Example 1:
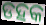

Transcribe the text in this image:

ଡହକ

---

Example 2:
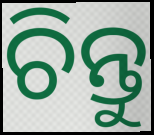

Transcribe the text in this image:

ଚିନ୍ତୁ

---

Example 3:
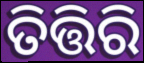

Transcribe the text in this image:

ତିତ୍ତିରି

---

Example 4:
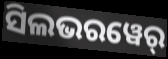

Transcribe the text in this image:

ସିଲଭରୱେର୍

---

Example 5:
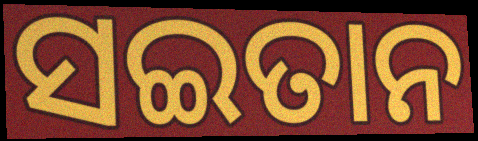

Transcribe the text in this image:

ସଇତାନ